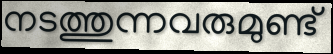
നടത്തുന്നവരുമുണ്ട്